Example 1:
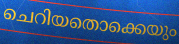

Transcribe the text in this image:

ചെറിയതൊക്കെയും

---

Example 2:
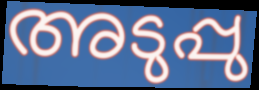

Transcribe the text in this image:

അടുപ്പു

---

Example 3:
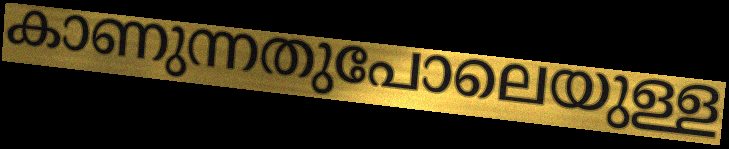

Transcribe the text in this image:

കാണുന്നതുപോലെയുള്ള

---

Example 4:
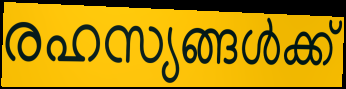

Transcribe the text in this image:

രഹസ്യങ്ങൾക്ക്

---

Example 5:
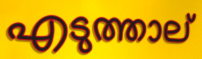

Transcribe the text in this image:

എടുത്താല്